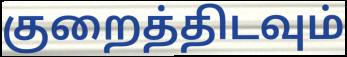
குறைத்திடவும்